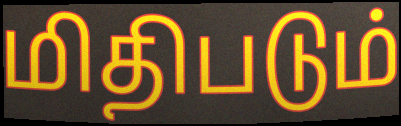
மிதிபடும்